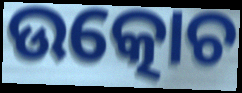
ଉତ୍କୋଚ